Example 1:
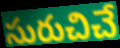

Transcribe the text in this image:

సురుచిచే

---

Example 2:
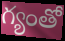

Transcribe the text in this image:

గ్యంతో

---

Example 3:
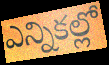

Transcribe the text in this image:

ఎన్నికల్లో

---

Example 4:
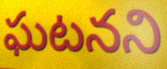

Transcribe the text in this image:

ఘటనని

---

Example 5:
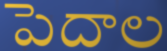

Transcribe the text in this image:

పెదాల